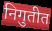
निगुतीत